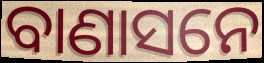
ବାଣାସନେ